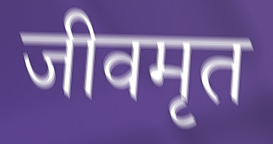
जीवमृत